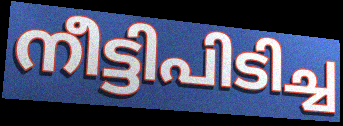
നീട്ടിപിടിച്ച